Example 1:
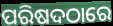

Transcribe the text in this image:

ପରିଷଦଠାରେ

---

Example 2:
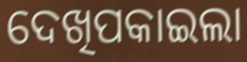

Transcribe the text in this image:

ଦେଖିପକାଇଲା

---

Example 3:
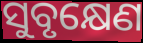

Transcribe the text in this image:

ସୁବୃକ୍ଷେଣ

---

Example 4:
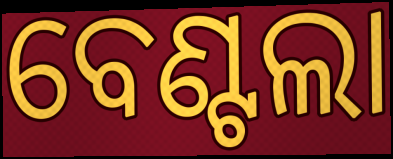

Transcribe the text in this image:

ବେଣ୍ଟଲା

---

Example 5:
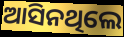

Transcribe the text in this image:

ଆସିନଥିଲେ